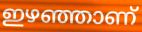
ഇഴഞ്ഞാണ്